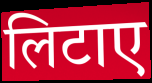
लिटाए